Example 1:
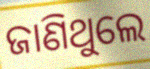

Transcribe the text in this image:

ଜାଣିଥୁଲେ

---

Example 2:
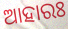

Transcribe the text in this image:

ଆହାରଃ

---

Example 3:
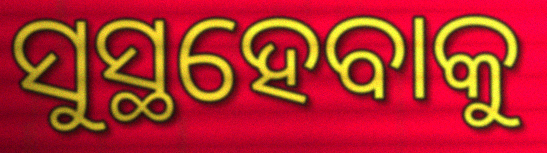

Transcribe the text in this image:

ସୁସ୍ଥହେବାକୁ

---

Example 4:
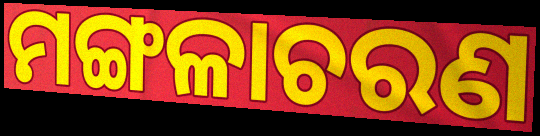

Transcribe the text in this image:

ମଙ୍ଗଳାଚରଣ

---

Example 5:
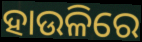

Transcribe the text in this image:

ହାଉଳିରେ